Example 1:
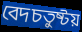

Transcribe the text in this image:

বেদচতুষ্টয়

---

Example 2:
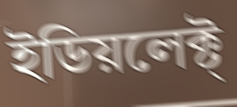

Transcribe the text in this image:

ইডিয়লেক্ট্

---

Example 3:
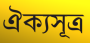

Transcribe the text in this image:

ঐক্যসূত্র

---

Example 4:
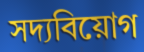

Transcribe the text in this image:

সদ্যবিয়োগ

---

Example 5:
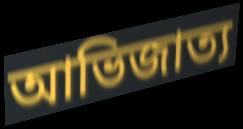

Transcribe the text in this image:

আভিজাত্য